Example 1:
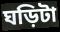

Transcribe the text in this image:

ঘড়িটা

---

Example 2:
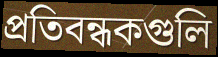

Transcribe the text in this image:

প্রতিবন্ধকগুলি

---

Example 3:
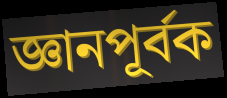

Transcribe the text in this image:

জ্ঞানপূর্বক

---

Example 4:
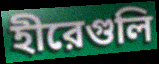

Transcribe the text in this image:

হীরেগুলি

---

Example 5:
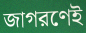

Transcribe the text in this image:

জাগরণেই